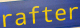
rafter